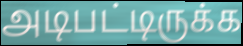
அடிபட்டிருக்க